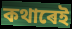
কথাৰেই